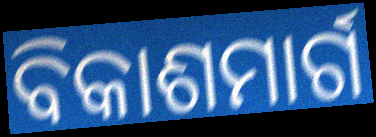
ବିକାଶମାର୍ଗ